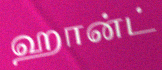
ஹான்ட்